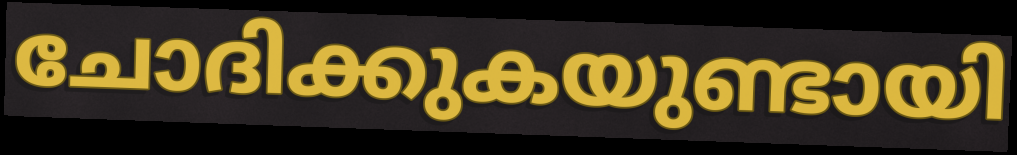
ചോദിക്കുകയുണ്ടായി